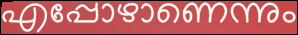
എപ്പോഴാണെന്നും